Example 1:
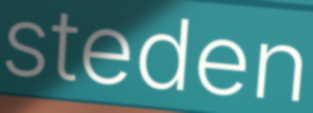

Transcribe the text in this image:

steden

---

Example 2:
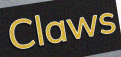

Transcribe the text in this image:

Claws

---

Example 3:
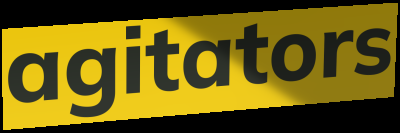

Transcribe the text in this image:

agitators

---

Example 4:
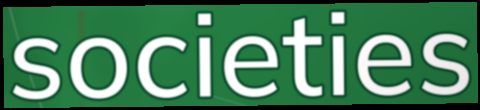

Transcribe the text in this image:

societies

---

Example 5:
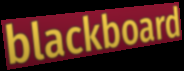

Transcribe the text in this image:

blackboard